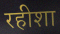
रहीशा